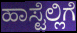
ಹಾಸ್ಟೆಲ್ಲಿಗೆ